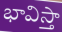
భావిస్తా